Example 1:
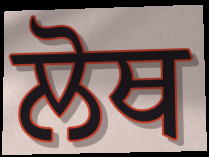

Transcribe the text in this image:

ਲੋਥ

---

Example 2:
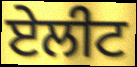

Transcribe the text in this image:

ਏਲੀਟ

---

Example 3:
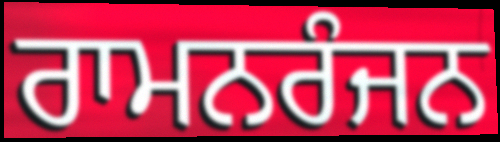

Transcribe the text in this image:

ਰਾਮਨਰੰਜਨ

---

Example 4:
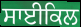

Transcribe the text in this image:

ਸਾਈਕਿਲ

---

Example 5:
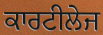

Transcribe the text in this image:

ਕਾਰਟੀਲੇਜ